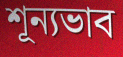
শূন্যভাব